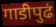
गाडीपुढं